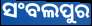
ସଂବଲପୁର